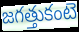
జగత్తుకంటె